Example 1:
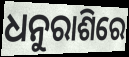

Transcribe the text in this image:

ଧନୁରାଶିରେ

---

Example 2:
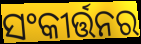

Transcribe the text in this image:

ସଂକୀର୍ତ୍ତନର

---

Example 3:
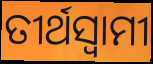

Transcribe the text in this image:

ତୀର୍ଥସ୍ୱାମୀ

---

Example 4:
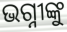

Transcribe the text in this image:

ଭଗ୍ନୀଙ୍କୁ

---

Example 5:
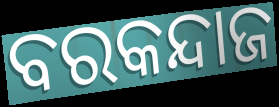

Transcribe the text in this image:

ବରକନ୍ଦାଜ